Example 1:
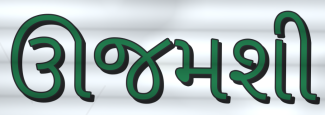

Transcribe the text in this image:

ઊજમશી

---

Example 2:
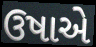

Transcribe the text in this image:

ઉષાએ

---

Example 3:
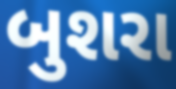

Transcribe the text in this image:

બુશરા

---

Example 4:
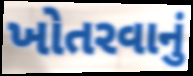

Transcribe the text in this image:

ખોતરવાનું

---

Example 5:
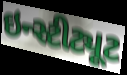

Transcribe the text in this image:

ઇન્સ્ટીટ્યૂટ